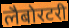
लैबोरटरी